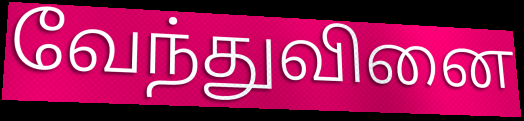
வேந்துவினை